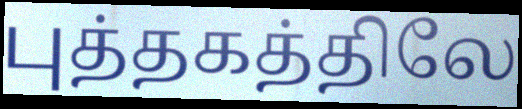
புத்தகத்திலே